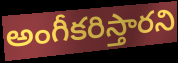
అంగీకరిస్తారని